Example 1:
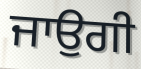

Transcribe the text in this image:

ਜਾਉਗੀ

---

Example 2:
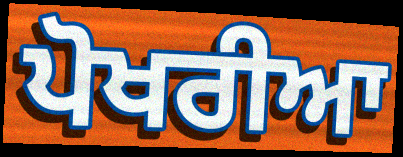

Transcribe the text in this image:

ਪੋਖਰੀਆ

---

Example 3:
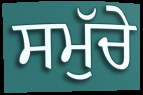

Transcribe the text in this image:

ਸਮੁੱਚੇ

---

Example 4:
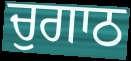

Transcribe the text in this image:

ਚੁਗਾਠ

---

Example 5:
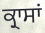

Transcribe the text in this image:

ਕ੍ਰਾਸਾਂ